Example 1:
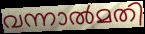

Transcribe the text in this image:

വന്നാൽമതി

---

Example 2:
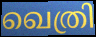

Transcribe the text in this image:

ഖെത്രി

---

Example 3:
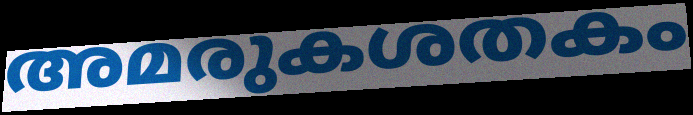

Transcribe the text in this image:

അമരുകശതകം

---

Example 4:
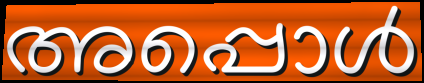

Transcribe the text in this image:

അപ്പൊൾ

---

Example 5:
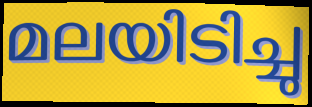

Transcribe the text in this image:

മലയിടിച്ചു